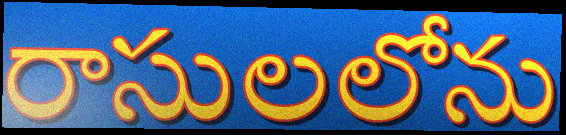
రాసులలోను